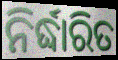
ନିର୍ଦ୍ଧାରିତ